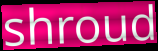
shroud